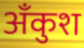
अँकुश